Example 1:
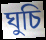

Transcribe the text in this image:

ঘুচি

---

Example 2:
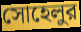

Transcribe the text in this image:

সোহেলুর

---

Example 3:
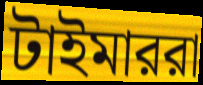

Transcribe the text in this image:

টাইমাররা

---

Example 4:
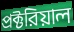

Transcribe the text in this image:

প্রক্টরিয়াল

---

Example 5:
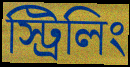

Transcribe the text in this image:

স্ট্রিলিং